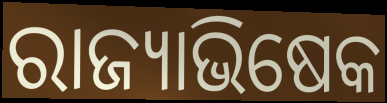
ରାଜ୍ୟାଭିଷେକ